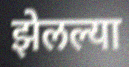
झेलल्या